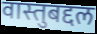
वास्तुबद्दल